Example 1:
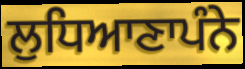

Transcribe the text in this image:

ਲੁਧਿਆਣਾਪੰਨੇ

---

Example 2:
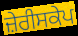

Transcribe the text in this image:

ਜ਼ੇਰੀਸਕੇਪ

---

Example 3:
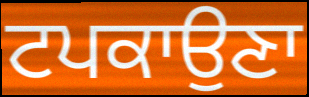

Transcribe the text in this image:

ਟਪਕਾਉਣਾ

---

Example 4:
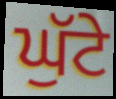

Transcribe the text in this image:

ਘੁੱਟੇ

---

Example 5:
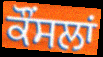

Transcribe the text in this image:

ਕੌਂਸਲਾਂ